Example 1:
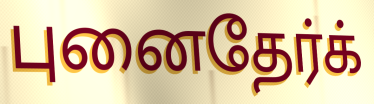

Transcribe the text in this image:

புனைதேர்க்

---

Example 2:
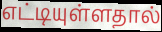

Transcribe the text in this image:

எட்டியுள்ளதால்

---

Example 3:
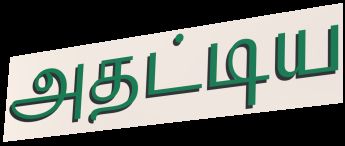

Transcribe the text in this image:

அதட்டிய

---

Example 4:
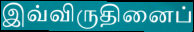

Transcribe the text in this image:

இவ்விருதினைப்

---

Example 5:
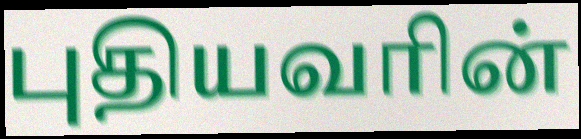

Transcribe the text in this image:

புதியவரின்